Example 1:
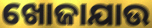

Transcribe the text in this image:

ଖୋଜାଯାଉ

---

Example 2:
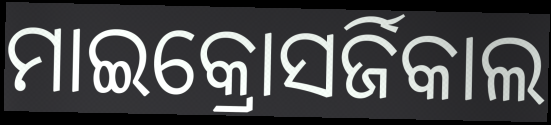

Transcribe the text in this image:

ମାଇକ୍ରୋସର୍ଜିକାଲ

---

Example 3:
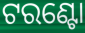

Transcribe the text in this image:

ଟରଣ୍ଟୋ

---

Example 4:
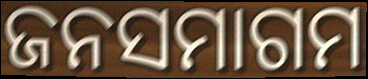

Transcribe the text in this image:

ଜନସମାଗମ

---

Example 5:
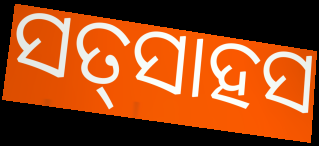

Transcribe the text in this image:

ସତ୍‍ସାହସ